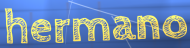
hermano